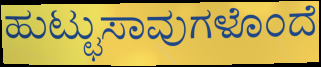
ಹುಟ್ಟುಸಾವುಗಳೊಂದೆ